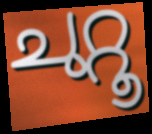
ചുറ്റൂ